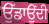
ਉੱਡਾਉਂਦੀ